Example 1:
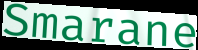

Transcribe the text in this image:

Smarane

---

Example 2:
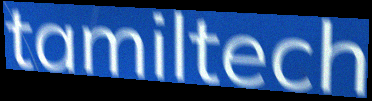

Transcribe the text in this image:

tamiltech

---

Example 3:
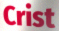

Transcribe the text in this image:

Crist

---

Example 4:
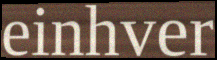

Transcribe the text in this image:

einhver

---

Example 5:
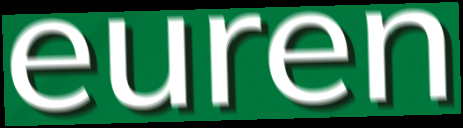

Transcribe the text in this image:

euren